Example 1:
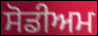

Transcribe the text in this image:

ਸੋਡੀਅਮ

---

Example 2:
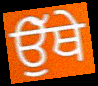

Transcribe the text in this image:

ਉੁੱਥੇ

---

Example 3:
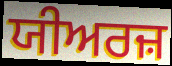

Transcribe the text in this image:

ਯੀਅਰਜ਼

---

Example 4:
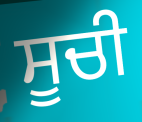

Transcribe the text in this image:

ਸੂਚੀ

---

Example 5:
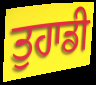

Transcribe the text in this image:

ਤੁਹਾਡੀ